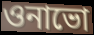
ওনাভো